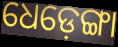
ଧେଡ଼େଙ୍ଗା